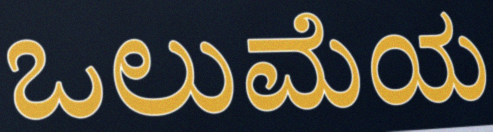
ಒಲುಮೆಯ